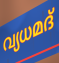
വ്യധമദ്